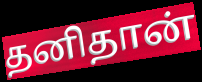
தனிதான்